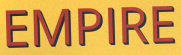
EMPIRE